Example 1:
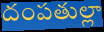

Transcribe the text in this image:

దంపతుల్లా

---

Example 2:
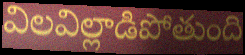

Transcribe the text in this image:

విలవిల్లాడిపోతుంది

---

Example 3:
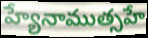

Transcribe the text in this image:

హ్యేనాముత్సహే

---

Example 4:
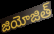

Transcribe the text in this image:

జియోజిత్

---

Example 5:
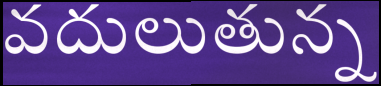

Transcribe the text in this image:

వదులుతున్న